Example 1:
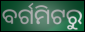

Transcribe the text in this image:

ବର୍ଗମିଟରୁ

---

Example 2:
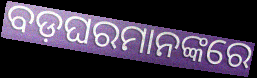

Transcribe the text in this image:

ବଡ଼ଘରମାନଙ୍କରେ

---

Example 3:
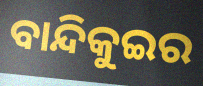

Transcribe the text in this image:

ବାନ୍ଦିକୁଇର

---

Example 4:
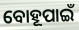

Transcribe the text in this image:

ବୋହୂପାଇଁ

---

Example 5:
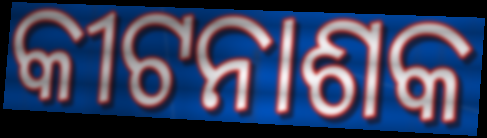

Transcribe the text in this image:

କୀଟନାଶକ